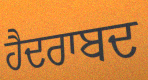
ਹੈਦਰਾਬਦ